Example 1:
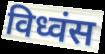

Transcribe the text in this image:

विध्वंस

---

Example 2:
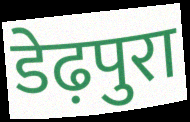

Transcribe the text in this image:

डेढ़पुरा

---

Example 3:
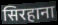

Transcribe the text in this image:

सिरहाना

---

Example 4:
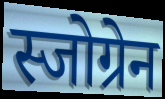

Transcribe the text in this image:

स्जोग्रेन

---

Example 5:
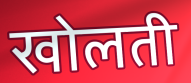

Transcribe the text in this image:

खोलती